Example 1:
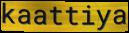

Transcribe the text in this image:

kaattiya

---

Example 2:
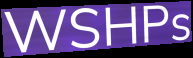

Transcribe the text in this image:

WSHPs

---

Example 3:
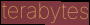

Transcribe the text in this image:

terabytes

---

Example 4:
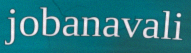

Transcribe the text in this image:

jobanavali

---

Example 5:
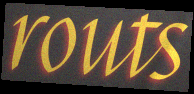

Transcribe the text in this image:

routs